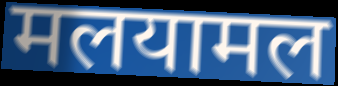
मलयामल